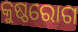
କୁଷ୍ଠରୋଗ